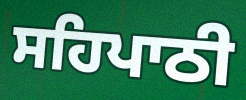
ਸਹਿਪਾਠੀ